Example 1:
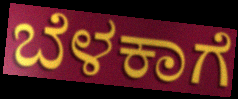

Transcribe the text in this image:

ಬೆಳಕಾಗೆ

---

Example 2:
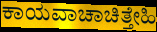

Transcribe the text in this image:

ಕಾಯವಾಚಾಚಿತ್ತೇಹಿ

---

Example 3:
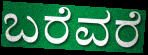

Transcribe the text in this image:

ಬರೆವರೆ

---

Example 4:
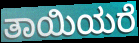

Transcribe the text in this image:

ತಾಯಿಯರೆ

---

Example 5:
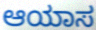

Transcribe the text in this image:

ಆಯಾಸ